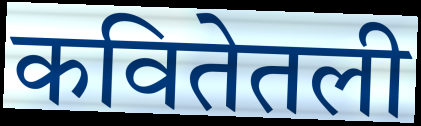
कवितेतली